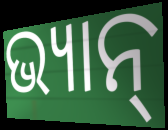
ଭ୍ୟାନ୍